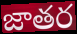
జాతర